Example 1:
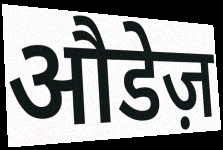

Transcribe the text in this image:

औडेज़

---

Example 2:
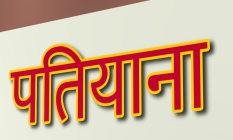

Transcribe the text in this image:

पतियाना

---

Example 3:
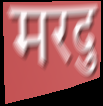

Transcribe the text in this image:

मरदु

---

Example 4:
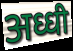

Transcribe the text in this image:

अध्धी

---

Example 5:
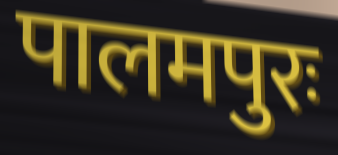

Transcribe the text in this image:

पालमपुरः